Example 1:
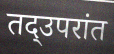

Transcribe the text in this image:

तद्उपरांत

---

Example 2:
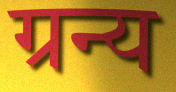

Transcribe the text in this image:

ग्रन्य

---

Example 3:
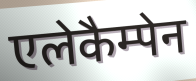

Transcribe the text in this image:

एलेकैम्पेन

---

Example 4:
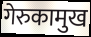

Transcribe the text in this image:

गेरुकामुख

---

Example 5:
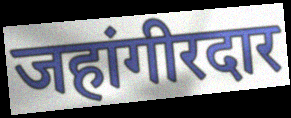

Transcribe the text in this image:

जहांगीरदार